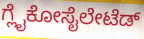
ಗ್ಲೈಕೋಸೈಲೇಟೆಡ್